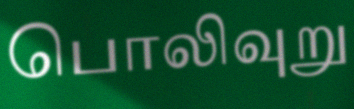
பொலிவுறு